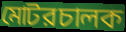
মোটরচালক